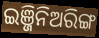
ଇଞ୍ଜିନିଅରିଙ୍ଗ